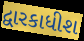
દ્વારકાધીશ